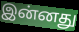
இன்னது